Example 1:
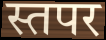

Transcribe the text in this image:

स्तपर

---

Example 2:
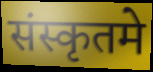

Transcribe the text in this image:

संस्कृतमे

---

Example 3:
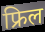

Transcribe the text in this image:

फ्रिल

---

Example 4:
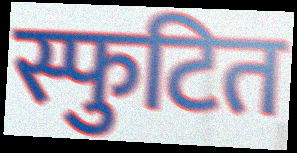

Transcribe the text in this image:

स्फुटित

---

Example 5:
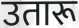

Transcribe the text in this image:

उतारू